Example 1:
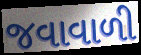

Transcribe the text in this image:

જવાવાળી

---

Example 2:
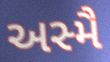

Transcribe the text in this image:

અસ્મૈ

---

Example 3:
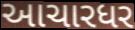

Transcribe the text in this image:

આચારધર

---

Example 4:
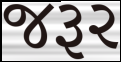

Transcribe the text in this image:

જરૂર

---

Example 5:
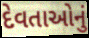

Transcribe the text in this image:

દેવતાઓનું